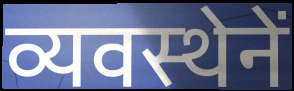
व्यवस्थेनें